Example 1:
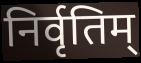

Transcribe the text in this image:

निर्वृतिम्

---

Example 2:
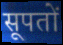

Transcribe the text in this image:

सूपतों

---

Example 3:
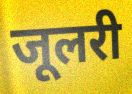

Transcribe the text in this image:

जूलरी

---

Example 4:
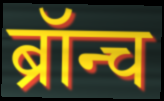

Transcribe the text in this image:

ब्रॉन्च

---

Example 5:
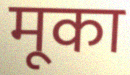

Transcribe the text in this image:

मूका